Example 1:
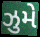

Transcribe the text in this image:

ઝુમે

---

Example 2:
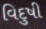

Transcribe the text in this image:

વિદુષી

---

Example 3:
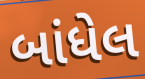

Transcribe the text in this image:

બાંધેલ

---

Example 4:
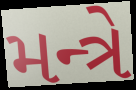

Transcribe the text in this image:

મન્ત્રે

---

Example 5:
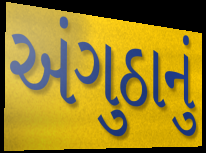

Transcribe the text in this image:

અંગુઠાનું